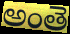
అంతె